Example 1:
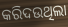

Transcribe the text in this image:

କରିଦଉଥିଲା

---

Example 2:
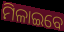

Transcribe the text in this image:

ମିଳାଇବେ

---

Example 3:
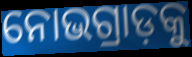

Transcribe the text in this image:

ନୋଭଗ୍ରାଡ଼କୁ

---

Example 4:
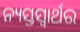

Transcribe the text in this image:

ନ୍ୟସ୍ତସ୍ଵାର୍ଥର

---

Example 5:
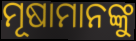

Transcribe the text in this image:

ମୂଷାମାନଙ୍କୁ